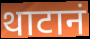
थाटानं